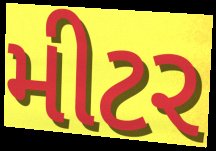
મીટર